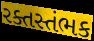
રક્તસ્તંભક